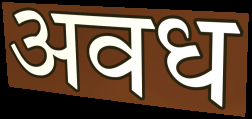
अवध